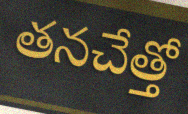
తనచేత్తో